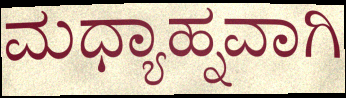
ಮಧ್ಯಾಹ್ನವಾಗಿ